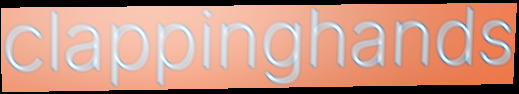
clappinghands